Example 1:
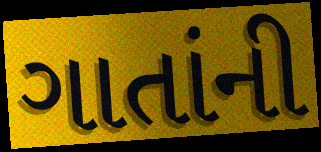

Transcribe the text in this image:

ગાતાંની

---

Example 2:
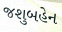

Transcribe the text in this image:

જશુબહેન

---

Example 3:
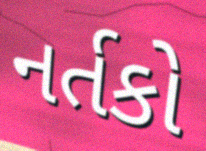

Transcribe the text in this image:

નર્તકો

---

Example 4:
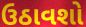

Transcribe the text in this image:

ઉઠાવશો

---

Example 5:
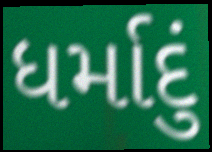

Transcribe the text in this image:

ધર્માદું